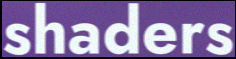
shaders